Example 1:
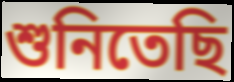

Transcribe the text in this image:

শুনিতেছি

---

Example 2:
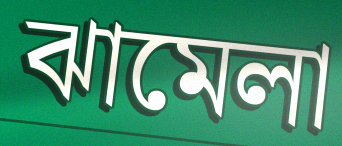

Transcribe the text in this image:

ঝামেলা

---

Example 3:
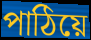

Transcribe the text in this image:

পাঠিয়ে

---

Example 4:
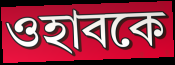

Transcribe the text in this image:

ওহাবকে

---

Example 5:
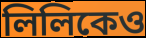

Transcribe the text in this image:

লিলিকেও